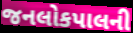
જનલોકપાલની